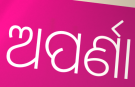
ଅପର୍ଣା